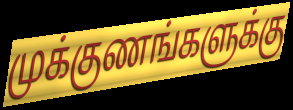
முக்குணங்களுக்கு